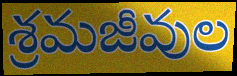
శ్రమజీవుల